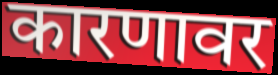
कारणावर